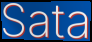
Sata